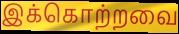
இக்கொற்றவை